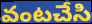
వంటచేసి